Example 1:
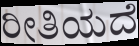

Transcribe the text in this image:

ರೀತಿಯದೆ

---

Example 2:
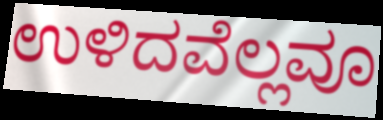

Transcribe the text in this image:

ಉಳಿದವೆಲ್ಲವೂ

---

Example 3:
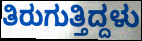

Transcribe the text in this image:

ತಿರುಗುತ್ತಿದ್ದಳು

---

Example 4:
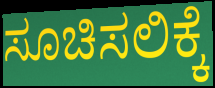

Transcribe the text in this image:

ಸೂಚಿಸಲಿಕ್ಕೆ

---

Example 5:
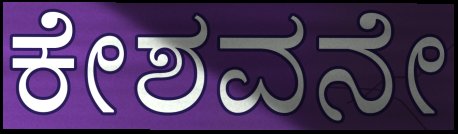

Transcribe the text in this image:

ಕೇಶವನೇ